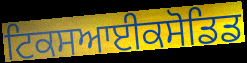
ਟਿਕਸਆਈਕਸੋਡਿਡ